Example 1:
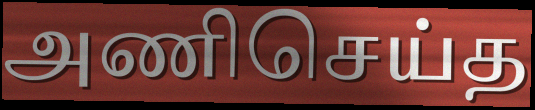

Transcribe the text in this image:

அணிசெய்த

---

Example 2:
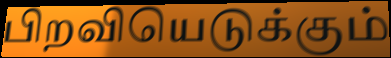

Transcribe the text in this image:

பிறவியெடுக்கும்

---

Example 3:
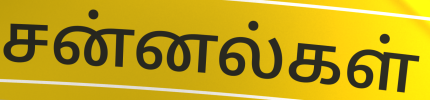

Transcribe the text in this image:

சன்னல்கள்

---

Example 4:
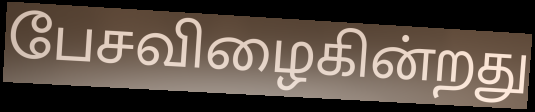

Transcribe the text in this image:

பேசவிழைகின்றது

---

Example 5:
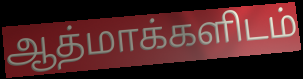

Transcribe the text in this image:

ஆத்மாக்களிடம்